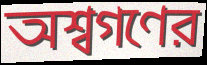
অশ্বগণের